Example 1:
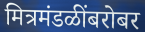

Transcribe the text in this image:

मित्रमंडळींबरोबर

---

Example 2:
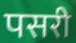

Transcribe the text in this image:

पसरी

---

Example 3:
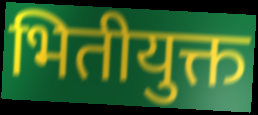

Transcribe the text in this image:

भितीयुक्त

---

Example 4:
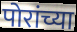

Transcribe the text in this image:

पोरांच्या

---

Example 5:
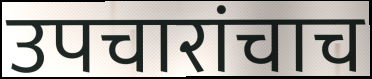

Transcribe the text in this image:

उपचारांचाच